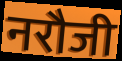
नरौजी